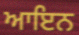
ਆਇਨ